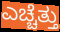
ಎಚ್ಚೆತ್ತು